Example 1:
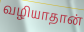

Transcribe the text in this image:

வழியாதான்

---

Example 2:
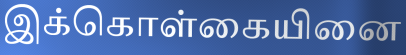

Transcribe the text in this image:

இக்கொள்கையினை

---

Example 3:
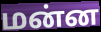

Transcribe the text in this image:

மன்ன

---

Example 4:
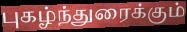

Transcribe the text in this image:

புகழ்ந்துரைக்கும்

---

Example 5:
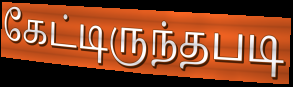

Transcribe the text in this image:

கேட்டிருந்தபடி